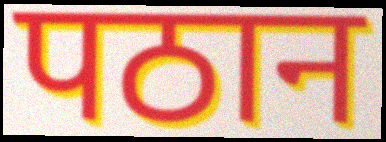
पठान